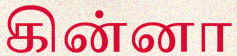
கின்னா